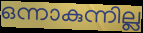
ഒന്നാകുന്നില്ല